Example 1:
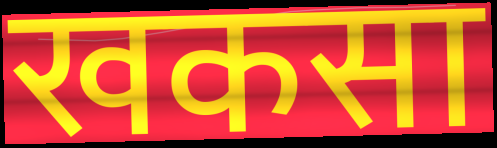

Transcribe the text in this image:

खकसा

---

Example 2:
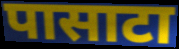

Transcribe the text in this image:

पासाटा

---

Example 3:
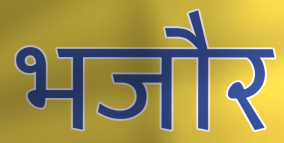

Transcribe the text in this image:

भजौर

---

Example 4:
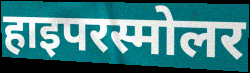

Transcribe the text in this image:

हाइपरस्मोलर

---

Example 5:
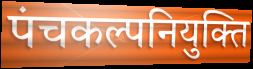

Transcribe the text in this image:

पंचकल्पनियुक्ति